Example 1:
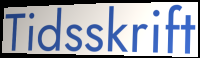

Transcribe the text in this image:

Tidsskrift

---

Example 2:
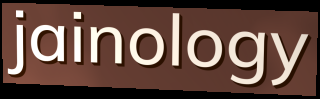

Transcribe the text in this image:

jainology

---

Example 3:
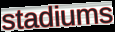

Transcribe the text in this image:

stadiums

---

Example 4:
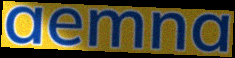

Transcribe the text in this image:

aemna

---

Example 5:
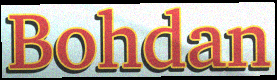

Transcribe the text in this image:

Bohdan